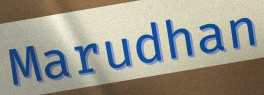
Marudhan